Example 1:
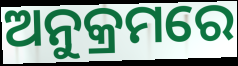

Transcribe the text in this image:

ଅନୁକ୍ରମରେ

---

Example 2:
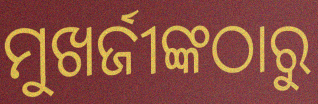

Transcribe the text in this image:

ମୁଖର୍ଜୀଙ୍କଠାରୁ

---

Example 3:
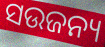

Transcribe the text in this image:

ସଉଜନ୍ୟ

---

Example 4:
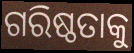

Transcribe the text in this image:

ଗରିଷ୍ଠତାକୁ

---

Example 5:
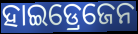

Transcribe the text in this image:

ହାଇଡ୍ରେଜେନ